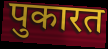
पुकारत